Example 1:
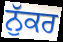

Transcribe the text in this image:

ਨੁੱਕਰ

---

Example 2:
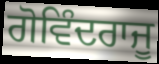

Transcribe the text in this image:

ਗੋਵਿੰਦਰਾਜੂ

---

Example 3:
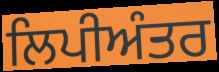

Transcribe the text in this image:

ਲਿਪੀਅੰਤਰ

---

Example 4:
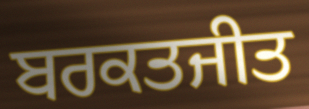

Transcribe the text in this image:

ਬਰਕਤਜੀਤ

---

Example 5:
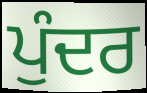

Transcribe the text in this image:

ਪੁੰਦਰ